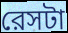
রেসটা